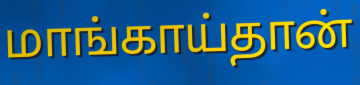
மாங்காய்தான்